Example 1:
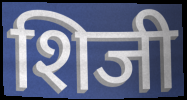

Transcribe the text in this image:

शिजी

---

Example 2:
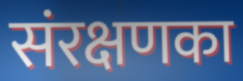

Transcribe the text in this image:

संरक्षणका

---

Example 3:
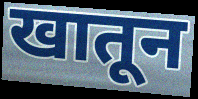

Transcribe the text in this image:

खातून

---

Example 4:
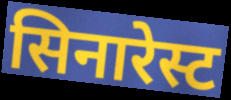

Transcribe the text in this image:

सिनारेस्ट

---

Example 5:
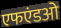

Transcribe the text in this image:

एफएंडओ